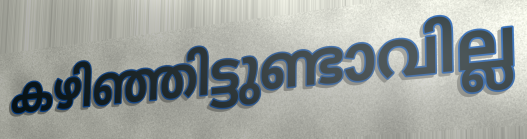
കഴിഞ്ഞിട്ടുണ്ടാവില്ല